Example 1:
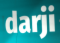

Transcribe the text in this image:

darji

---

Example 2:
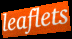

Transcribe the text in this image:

leaflets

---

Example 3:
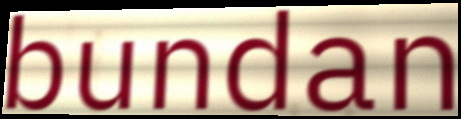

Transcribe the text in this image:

bundan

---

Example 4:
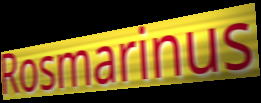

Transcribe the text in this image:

Rosmarinus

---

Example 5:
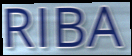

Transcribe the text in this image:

RIBA